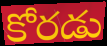
కోరడు